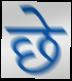
छे